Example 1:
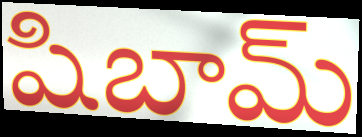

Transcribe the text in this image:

షిబామ్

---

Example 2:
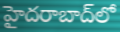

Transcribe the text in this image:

హైదరాబాద్‌లో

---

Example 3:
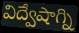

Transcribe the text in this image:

విద్వేషాగ్ని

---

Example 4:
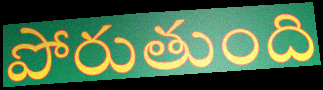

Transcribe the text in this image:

పోరుతుంది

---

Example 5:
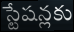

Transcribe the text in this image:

స్టేషన్లకు